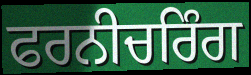
ਫਰਨੀਚਰਿੰਗ